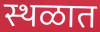
स्थळात